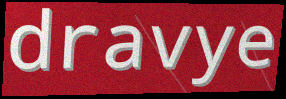
dravye